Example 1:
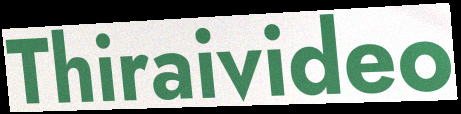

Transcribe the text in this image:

Thiraivideo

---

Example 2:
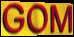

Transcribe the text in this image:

GOM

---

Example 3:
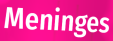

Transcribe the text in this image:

Meninges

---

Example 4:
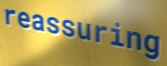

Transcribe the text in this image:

reassuring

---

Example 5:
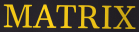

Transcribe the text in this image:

MATRIX